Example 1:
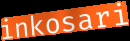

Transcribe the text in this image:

inkosari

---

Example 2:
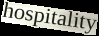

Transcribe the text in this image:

hospitality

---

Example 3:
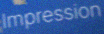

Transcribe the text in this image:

Impression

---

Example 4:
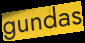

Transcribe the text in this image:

gundas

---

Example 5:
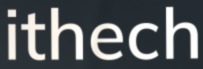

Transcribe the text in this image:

ithech